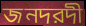
জনদরদী